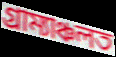
গ্ৰাম্যাঞ্চলত